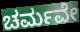
ಚರ್ಮವೇ